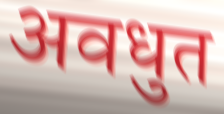
अवधुत